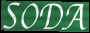
SODA